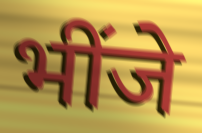
भींजे